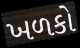
ખળકો